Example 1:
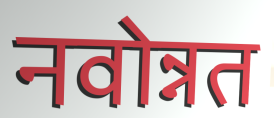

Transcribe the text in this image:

नवोन्नत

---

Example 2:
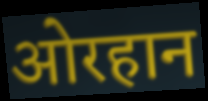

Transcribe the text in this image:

ओरहान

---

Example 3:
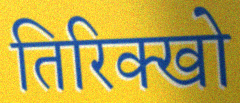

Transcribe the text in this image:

तिरिक्खो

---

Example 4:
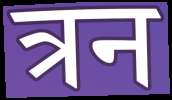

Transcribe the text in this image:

त्रन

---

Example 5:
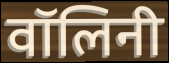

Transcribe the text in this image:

वॉलिनी